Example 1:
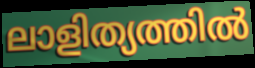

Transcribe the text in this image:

ലാളിത്യത്തിൽ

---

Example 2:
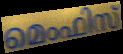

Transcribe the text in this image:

മെംഫിസ്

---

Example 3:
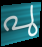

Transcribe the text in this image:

പു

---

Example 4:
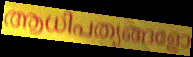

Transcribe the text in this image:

ആധിപത്യങ്ങളോ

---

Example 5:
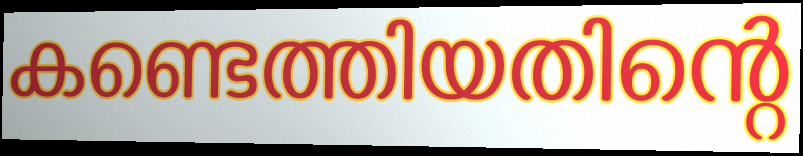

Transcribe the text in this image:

കണ്ടെത്തിയതിന്റെ